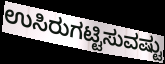
ಉಸಿರುಗಟ್ಟಿಸುವಷ್ಟು